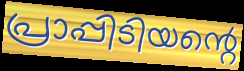
പ്രാപ്പിടിയന്റെ